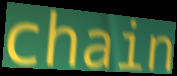
chain